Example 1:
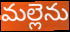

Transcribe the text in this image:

మల్లెను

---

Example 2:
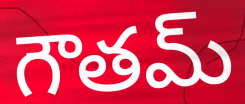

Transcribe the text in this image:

గౌతమ్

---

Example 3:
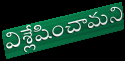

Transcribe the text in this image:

విశ్లేషించామని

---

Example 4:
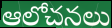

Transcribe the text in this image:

ఆలోచనలు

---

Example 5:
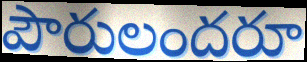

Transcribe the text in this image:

పౌరులందరూ